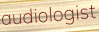
audiologist